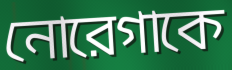
নোরেগাকে